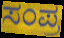
ಸಂಪ್ರ